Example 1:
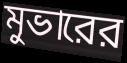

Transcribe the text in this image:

মুভারের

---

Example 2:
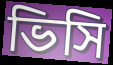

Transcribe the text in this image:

ভিসি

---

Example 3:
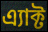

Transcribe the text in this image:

এ্যাক্ট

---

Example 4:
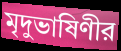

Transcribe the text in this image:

মৃদুভাষিণীর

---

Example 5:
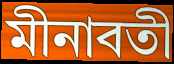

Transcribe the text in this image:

মীনাবতী